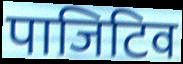
पाजिटिव